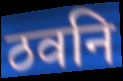
ठवनि